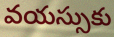
వయస్సుకు